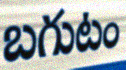
బగుటం